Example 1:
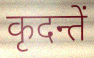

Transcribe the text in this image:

कृदन्तें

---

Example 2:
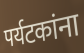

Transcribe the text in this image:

पर्यटकांना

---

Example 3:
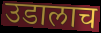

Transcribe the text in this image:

उडालाच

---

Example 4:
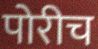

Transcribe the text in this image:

पोरीच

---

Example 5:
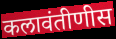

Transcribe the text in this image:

कलावंतीणीस